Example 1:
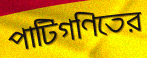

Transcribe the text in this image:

পাটিগণিতের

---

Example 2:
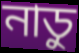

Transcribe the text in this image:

নাডু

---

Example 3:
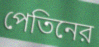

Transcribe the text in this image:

পেতিনের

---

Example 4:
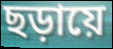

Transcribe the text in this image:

ছড়ায়ে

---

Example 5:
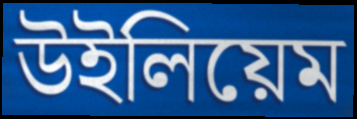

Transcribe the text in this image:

উইলিয়েম